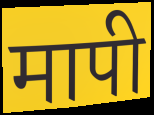
मापी